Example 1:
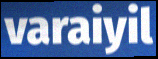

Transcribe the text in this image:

varaiyil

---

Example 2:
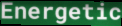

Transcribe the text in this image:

Energetic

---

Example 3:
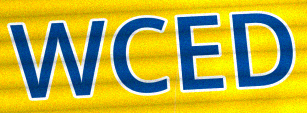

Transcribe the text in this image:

WCED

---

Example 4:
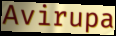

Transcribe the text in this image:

Avirupa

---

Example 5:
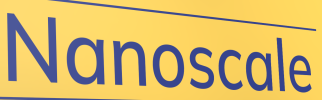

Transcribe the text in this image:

Nanoscale